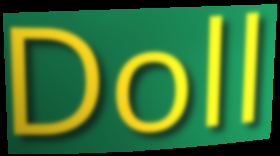
Doll